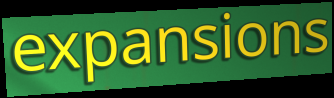
expansions